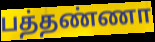
பத்தண்ணா